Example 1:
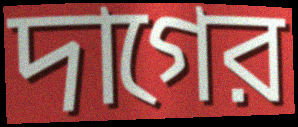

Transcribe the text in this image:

দাগের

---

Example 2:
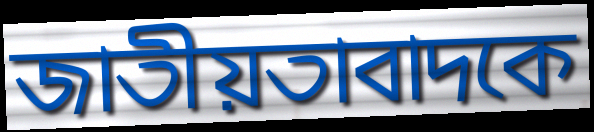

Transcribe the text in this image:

জাতীয়তাবাদকে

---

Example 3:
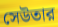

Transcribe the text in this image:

সেউতার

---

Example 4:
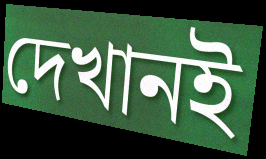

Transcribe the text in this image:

দেখানই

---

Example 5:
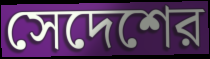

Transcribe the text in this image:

সেদেশের